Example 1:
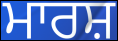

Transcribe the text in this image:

ਮਾਰਸ਼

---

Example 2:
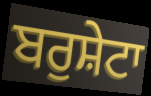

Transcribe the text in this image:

ਬਰੁਸ਼ੇਟਾ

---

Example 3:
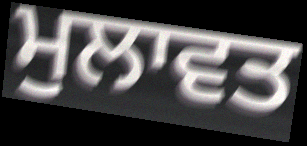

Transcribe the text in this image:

ਮੁਲਾਵਤ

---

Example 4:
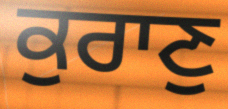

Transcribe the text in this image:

ਕੁਰਾਣੁ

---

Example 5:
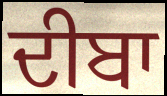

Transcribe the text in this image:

ਦੀਬਾ